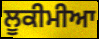
ਲੂਕੀਮੀਆ